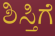
ಶಿಸ್ತಿಗೆ